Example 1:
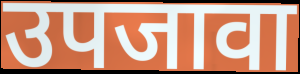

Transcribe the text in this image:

उपजावा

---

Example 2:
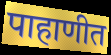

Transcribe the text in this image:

पाहाणीत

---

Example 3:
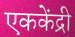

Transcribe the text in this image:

एककेंद्री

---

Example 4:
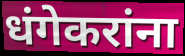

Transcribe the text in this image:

धंगेकरांना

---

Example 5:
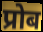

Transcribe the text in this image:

प्रोब